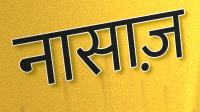
नासाज़